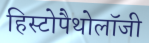
हिस्टोपैथोलॉजी